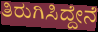
ತಿರುಗಿಸಿದ್ದೇನೆ